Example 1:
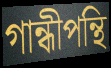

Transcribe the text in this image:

গান্ধীপন্থি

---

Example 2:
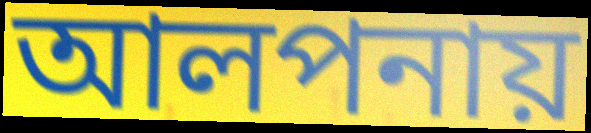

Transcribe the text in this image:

আলপনায়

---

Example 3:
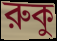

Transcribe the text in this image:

রুকু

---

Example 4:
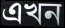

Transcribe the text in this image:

এখন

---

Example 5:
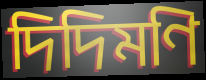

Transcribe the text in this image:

দিদিমণি